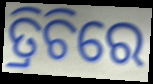
ତ୍ରିଚିରେ